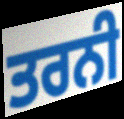
ਤਰਨੀ